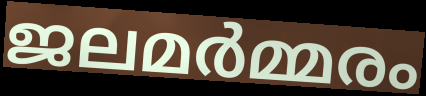
ജലമർമ്മരം